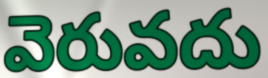
వెరువదు